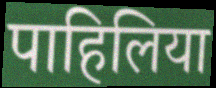
पाहिलिया